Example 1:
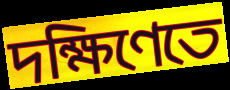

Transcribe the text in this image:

দক্ষিণেতে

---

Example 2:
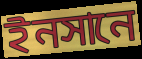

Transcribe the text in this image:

ইনসানে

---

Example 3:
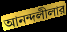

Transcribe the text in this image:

আনন্দলীলার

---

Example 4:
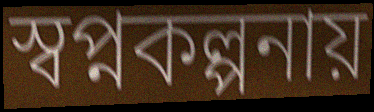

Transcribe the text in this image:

স্বপ্নকল্পনায়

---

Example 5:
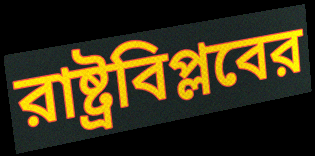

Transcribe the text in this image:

রাষ্ট্রবিপ্লবের